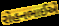
રોહનભાઈએ